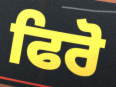
ਫਿਰੋ